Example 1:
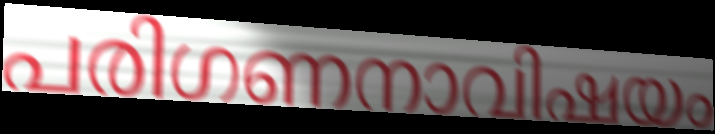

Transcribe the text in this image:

പരിഗണനാവിഷയം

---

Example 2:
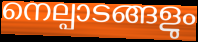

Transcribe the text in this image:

നെല്പാടങ്ങളും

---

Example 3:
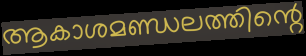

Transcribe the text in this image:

ആകാശമണ്ഡലത്തിന്റെ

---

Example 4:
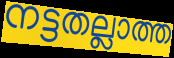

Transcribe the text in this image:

നട്ടതല്ലാത്ത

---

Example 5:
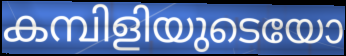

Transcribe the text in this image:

കമ്പിളിയുടെയോ